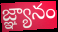
జ్ఞ్యానం